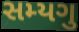
સમ્યગુ